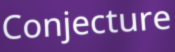
Conjecture